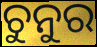
ଚୁନୁର